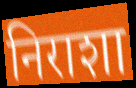
निराशा